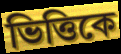
ভিত্তিকে